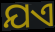
ଯଏ